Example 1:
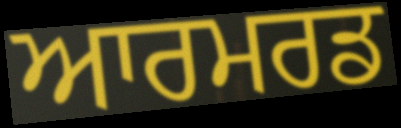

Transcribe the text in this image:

ਆਰਮਰਡ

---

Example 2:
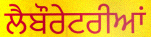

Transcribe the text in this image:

ਲੈਬੌਰੇਟਰੀਆਂ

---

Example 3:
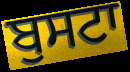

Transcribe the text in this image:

ਬੁਸਟਾ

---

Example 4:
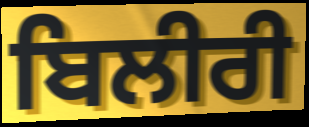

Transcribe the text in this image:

ਬਿਲੀਰੀ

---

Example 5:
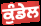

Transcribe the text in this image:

ਕੁੰਡੇਲ